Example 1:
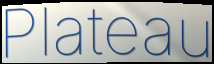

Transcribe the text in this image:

Plateau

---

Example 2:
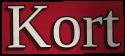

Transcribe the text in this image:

Kort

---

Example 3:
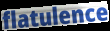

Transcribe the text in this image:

flatulence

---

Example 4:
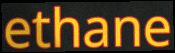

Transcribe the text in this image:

ethane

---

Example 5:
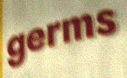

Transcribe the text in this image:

germs